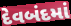
દેવબંદમાં